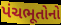
પંચભૂતોનો